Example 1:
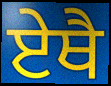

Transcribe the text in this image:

ਏਥੈ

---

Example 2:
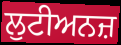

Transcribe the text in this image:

ਲੁਟੀਅਨਜ਼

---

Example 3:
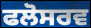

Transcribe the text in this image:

ਫਲੋਸਰਵ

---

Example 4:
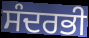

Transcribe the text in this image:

ਸੰਦਰਭੀ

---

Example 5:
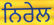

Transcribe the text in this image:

ਨਿਰੇਲ